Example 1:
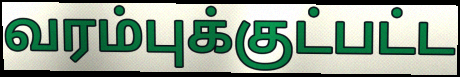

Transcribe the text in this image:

வரம்புக்குட்பட்ட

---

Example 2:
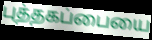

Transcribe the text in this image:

புத்தகப்பையை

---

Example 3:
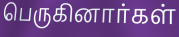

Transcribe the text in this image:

பெருகினார்கள்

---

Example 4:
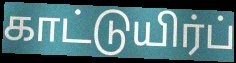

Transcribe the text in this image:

காட்டுயிர்ப்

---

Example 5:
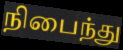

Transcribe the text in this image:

நிபைந்து